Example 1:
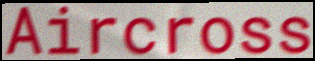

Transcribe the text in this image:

Aircross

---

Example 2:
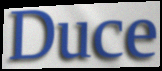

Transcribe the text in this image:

Duce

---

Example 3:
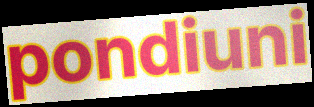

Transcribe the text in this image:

pondiuni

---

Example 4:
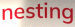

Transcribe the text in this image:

nesting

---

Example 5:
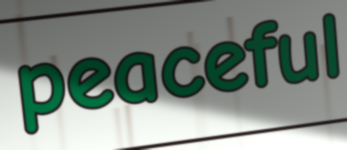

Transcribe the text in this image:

peaceful